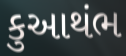
કુઆથંભ